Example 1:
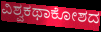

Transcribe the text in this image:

ವಿಶ್ವಕಥಾಕೋಶದ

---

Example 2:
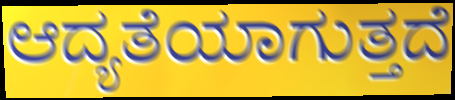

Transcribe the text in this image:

ಆದ್ಯತೆಯಾಗುತ್ತದೆ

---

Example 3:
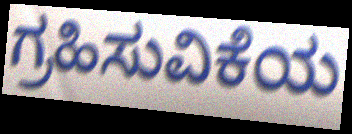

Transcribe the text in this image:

ಗ್ರಹಿಸುವಿಕೆಯ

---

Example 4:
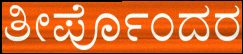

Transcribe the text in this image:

ತೀರ್ಪೊಂದರ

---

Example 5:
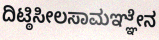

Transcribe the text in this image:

ದಿಟ್ಠಿಸೀಲಸಾಮಞ್ಞೇನ